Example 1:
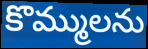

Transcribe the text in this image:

కొమ్ములను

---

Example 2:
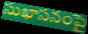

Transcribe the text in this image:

సుఖాసనంపై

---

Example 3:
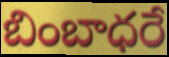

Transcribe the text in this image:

బింబాధరే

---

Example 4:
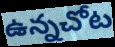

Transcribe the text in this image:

ఉన్నచోట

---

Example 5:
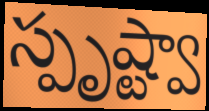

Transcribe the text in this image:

స్పృష్ట్వా